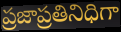
ప్రజాప్రతినిధిగా